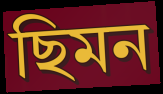
ছিমন